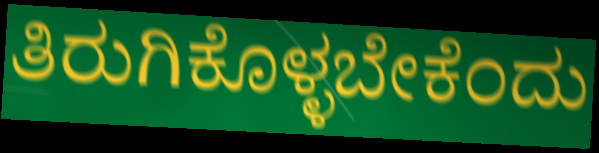
ತಿರುಗಿಕೊಳ್ಳಬೇಕೆಂದು